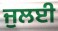
ਜੁਲਈ